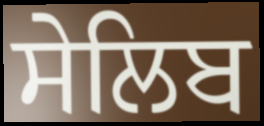
ਸੇਲਿਬ